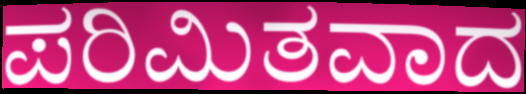
ಪರಿಮಿತವಾದ